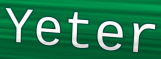
Yeter